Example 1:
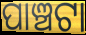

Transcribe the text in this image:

ପାଞ୍ଚଟା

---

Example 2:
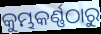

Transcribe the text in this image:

କୁମ୍ଭକର୍ଣ୍ଣଠାରୁ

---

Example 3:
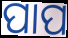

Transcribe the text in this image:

ପାପ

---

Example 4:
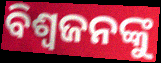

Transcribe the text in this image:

ବିଶ୍ୱଜନଙ୍କୁ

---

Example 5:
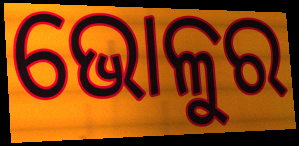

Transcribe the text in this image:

ଭୋଳୁର